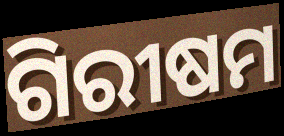
ଗିରୀଷମ